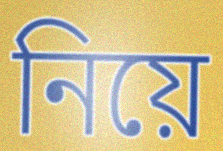
নিয়ে